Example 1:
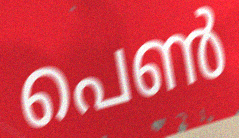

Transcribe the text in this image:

പെൺ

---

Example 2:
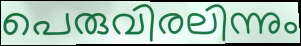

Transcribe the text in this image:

പെരുവിരലിന്നും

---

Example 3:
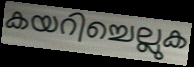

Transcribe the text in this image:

കയറിച്ചെല്ലുക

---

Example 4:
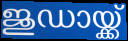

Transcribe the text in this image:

ജുഡായ്ക്ക്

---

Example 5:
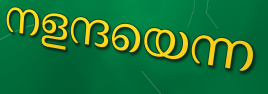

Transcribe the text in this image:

നളന്ദയെന്ന